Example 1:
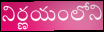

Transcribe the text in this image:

నిర్ణయంలోని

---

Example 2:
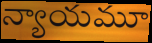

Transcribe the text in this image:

న్యాయమూ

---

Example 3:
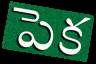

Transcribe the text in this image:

పెక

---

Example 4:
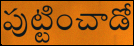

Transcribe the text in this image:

పుట్టించాడో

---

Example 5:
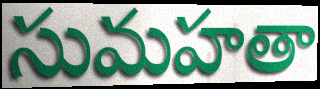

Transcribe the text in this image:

సుమహతా